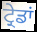
ਟ੍ਰੇਡਾਂ